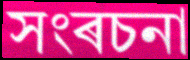
সংৰচনা